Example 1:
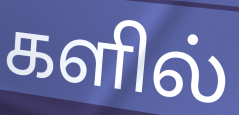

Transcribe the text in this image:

களில்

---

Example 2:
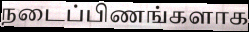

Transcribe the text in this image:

நடைப்பிணங்களாக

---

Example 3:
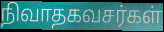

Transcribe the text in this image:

நிவாதகவசர்கள்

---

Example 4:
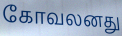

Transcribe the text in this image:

கோவலனது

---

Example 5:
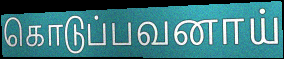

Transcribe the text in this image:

கொடுப்பவனாய்